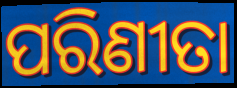
ପରିଣୀତା